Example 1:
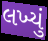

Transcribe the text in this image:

લખ્યું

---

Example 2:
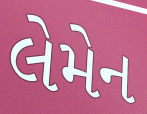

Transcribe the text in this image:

લેમેન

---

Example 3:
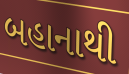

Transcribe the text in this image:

બહાનાથી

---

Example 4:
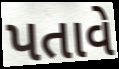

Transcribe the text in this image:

પતાવે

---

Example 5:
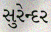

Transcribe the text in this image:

સુરેન્દર